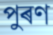
পুৰণ